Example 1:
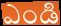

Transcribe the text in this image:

ఎండి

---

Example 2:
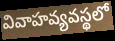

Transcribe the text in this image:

వివాహవ్యవస్థలో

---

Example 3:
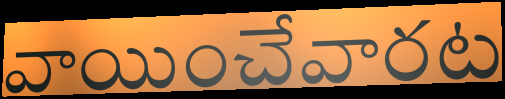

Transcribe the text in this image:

వాయించేవారట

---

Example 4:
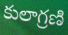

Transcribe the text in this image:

కులాగ్రణి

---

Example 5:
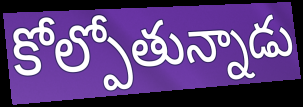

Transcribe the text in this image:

కోల్పోతున్నాడు